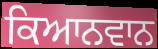
ਕਿਆਨਵਾਨ